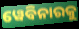
ୱେବିନାରକୁ